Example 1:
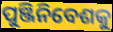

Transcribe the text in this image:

ପୁଞ୍ଜିନିବେଶକୁ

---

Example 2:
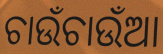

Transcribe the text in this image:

ଚାଉଁଚାଉଁଆ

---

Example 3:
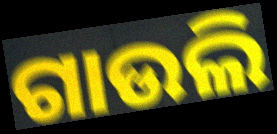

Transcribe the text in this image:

ଗାଉଲି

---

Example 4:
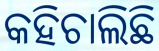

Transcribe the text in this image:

କହିଚାଲିଛି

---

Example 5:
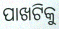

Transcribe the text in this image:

ପାଖଟିକୁ